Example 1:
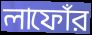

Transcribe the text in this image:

লাফোঁর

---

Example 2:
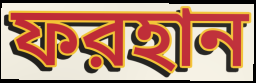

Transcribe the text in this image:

ফরহান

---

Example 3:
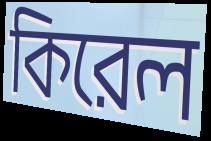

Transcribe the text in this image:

কিরেল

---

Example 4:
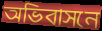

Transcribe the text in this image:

অভিবাসনে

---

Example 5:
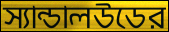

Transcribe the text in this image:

স্যান্ডালউডের